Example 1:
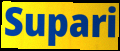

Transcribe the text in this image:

Supari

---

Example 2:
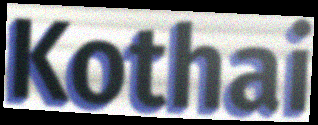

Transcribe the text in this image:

Kothai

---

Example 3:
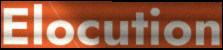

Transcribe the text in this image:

Elocution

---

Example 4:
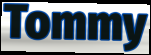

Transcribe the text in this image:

Tommy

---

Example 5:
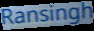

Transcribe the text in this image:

Ransingh